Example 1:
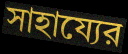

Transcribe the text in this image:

সাহায্যের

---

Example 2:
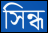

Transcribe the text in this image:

সিন্ধ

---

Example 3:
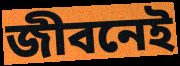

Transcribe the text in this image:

জীবনেই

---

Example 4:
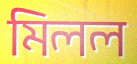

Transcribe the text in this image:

মিলল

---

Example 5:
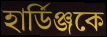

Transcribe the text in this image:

হার্ডিঞ্জকে